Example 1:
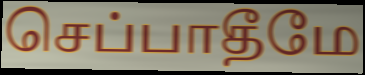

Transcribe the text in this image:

செப்பாதீமே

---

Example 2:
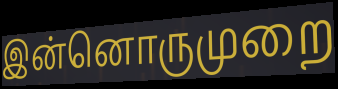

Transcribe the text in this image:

இன்னொருமுறை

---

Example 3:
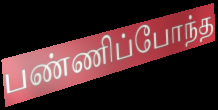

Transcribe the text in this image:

பண்ணிப்போந்த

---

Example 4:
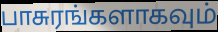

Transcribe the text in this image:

பாசுரங்களாகவும்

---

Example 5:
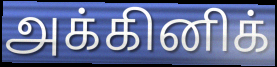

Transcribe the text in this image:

அக்கினிக்